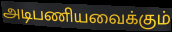
அடிபணியவைக்கும்